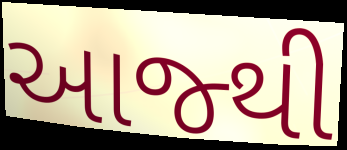
આજ્થી